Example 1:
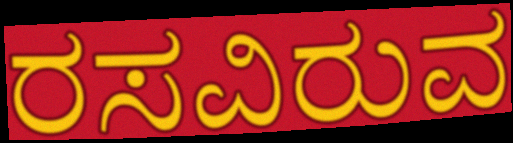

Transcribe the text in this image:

ರಸವಿರುವ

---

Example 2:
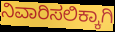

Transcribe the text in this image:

ನಿವಾರಿಸಲಿಕ್ಕಾಗಿ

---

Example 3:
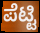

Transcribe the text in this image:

ಪೆಟ್ಟಿ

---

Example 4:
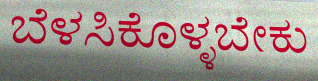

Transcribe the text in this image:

ಬೆಳಸಿಕೊಳ್ಳಬೇಕು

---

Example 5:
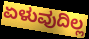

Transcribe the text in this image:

ಏಳುವುದಿಲ್ಲ